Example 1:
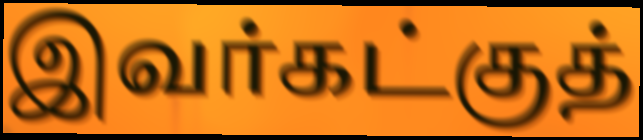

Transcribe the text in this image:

இவர்கட்குத்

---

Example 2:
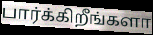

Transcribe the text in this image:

பார்க்கிறீங்களா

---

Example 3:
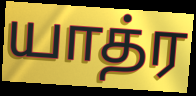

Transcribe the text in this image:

யாத்ர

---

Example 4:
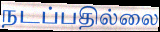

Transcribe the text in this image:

நடப்பதில்லை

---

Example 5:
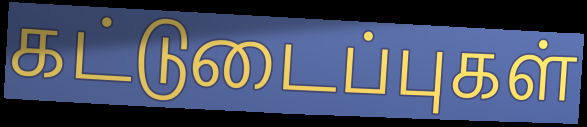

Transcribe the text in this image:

கட்டுடைப்புகள்